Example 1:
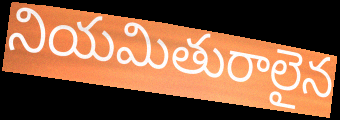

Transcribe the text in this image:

నియమితురాలైన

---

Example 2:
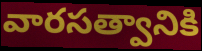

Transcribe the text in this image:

వారసత్వానికి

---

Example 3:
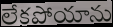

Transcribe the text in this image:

లేకపోయాను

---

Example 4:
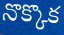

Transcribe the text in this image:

నొక్కొక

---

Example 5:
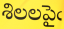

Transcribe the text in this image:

శిలలపైఁ